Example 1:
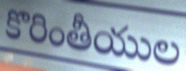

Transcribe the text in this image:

కొరింతీయుల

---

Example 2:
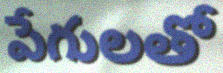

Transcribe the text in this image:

పేగులతో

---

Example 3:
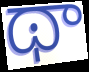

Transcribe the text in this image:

థా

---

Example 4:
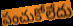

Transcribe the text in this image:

పంచుకోలేదు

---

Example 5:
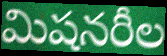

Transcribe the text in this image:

మిషనరీల